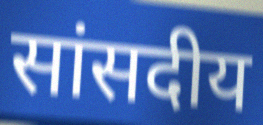
सांसदीय